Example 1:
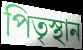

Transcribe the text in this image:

পিতৃস্থান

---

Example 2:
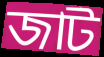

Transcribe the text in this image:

জাট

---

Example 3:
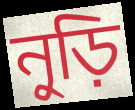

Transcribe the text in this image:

নুড়ি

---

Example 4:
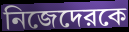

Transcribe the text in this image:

নিজেদেরকে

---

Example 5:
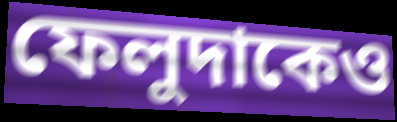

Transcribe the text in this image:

ফেলুদাকেও